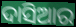
ଦାସିଆର